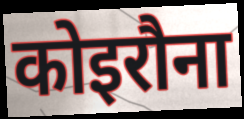
कोइरौना